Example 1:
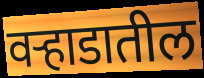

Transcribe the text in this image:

वर्‍हाडातील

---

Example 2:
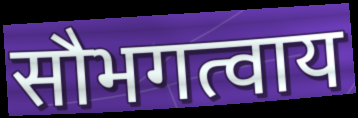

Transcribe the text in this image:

सौभगत्वाय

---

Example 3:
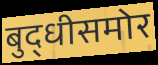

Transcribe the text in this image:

बुद्धीसमोर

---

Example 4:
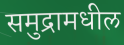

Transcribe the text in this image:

समुद्रामधील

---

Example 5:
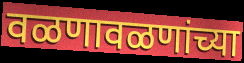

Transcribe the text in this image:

वळणावळणांच्या